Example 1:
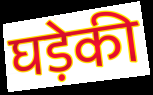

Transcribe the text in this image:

घड़ेकी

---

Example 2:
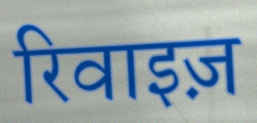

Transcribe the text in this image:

रिवाइज़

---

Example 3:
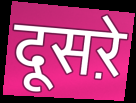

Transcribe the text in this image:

दूसऱे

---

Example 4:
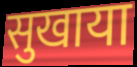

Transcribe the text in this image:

सुखाया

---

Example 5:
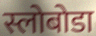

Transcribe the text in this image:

स्लोबोडा